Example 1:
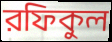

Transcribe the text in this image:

রফিকুল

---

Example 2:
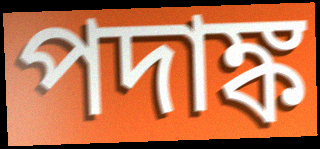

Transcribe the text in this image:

পদাঙ্ক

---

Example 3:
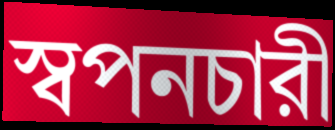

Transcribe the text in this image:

স্বপনচারী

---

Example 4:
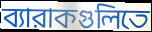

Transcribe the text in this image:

ব্যারাকগুলিতে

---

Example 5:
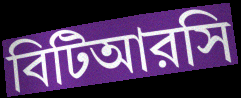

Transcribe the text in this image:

বিটিআরসি